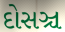
દોસઞ્ચ